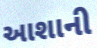
આશાની